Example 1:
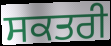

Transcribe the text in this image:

ਸਕਤਰੀ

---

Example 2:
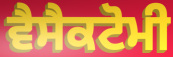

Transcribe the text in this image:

ਵੈਸੈਕਟੋਮੀ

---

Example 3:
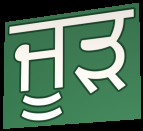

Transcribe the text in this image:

ਜੂੜ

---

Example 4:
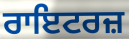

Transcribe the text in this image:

ਰਾਇਟਰਜ਼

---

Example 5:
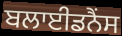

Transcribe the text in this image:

ਬਲਾਈਡਨੈਂਸ